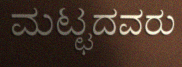
ಮಟ್ಟದವರು